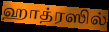
ஹாத்ரஸில்